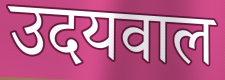
उदयवाल